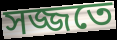
সজ্জতে